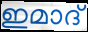
ഇമാദ്